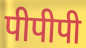
पीपीपी